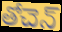
తోచెన్